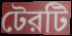
টেরটি